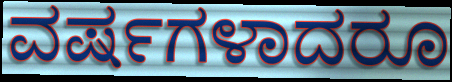
ವರ್ಷಗಳಾದರೂ